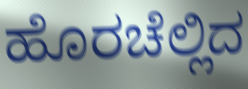
ಹೊರಚೆಲ್ಲಿದ